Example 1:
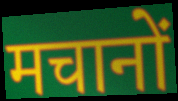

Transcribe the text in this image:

मचानों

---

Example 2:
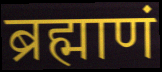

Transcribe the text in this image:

ब्रह्माणं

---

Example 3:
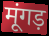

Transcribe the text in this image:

मूंगड़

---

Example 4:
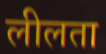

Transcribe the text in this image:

लीलता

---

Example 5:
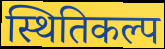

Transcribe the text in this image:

स्थितिकल्प